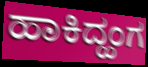
ಹಾಕಿದ್ಹಂಗ